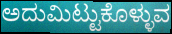
ಅದುಮಿಟ್ಟುಕೊಳ್ಳುವ